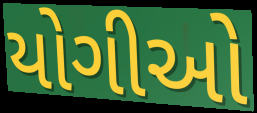
યોગીઓ